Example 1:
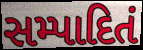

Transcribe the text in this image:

સમ્પાદિતં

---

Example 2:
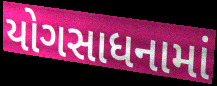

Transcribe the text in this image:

યોગસાધનામાં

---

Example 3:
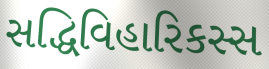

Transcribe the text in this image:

સદ્ધિવિહારિકસ્સ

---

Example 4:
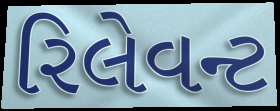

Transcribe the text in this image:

રિલેવન્ટ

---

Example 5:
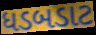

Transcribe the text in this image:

ધડબડાટ